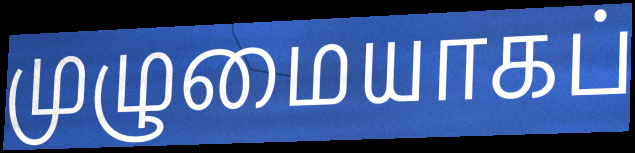
முழுமையாகப்